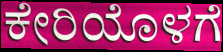
ಕೇರಿಯೊಳಗೆ